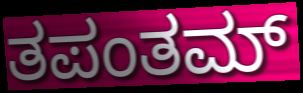
ತಪಂತಮ್